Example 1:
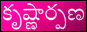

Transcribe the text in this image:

కృష్ణార్పణ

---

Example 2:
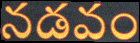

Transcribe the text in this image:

నడవం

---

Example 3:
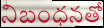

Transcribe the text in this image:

నిబంధనతో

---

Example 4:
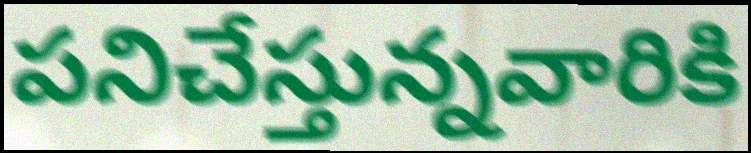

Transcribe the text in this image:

పనిచేస్తున్నవారికి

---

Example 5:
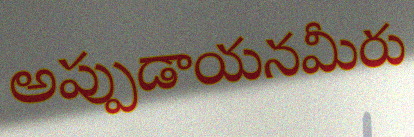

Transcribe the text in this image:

అప్పుడాయనమీరు